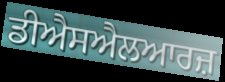
ਡੀਐਸਐਲਆਰਜ਼